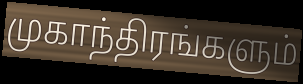
முகாந்திரங்களும்